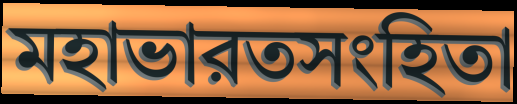
মহাভারতসংহিতা